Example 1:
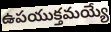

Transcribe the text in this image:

ఉపయుక్తమయ్యే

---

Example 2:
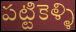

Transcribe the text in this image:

పట్టికెళ్ళి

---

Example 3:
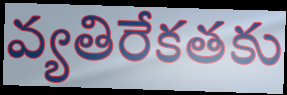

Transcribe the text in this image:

వ్యతిరేకతకు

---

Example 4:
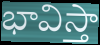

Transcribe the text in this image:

భావిస్తా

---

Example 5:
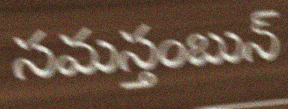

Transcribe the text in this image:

సమస్తంబున్